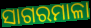
ସାଗରମାଳା